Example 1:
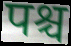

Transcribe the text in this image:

पश्च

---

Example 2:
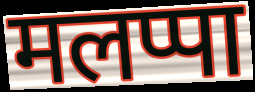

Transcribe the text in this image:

मलप्पा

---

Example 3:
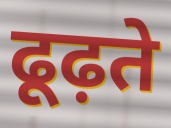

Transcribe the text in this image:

ढूढ़ते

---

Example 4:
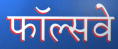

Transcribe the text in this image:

फॉल्सवे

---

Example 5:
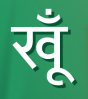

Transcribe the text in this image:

खूँ